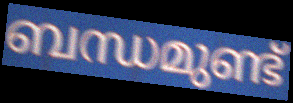
ബന്ധമുണ്ട്